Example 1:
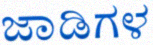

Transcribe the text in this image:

ಜಾಡಿಗಳ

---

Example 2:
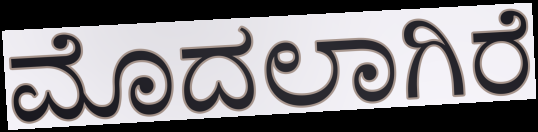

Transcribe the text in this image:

ಮೊದಲಾಗಿರೆ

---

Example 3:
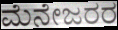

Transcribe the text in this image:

ಮೆನೇಜರರ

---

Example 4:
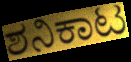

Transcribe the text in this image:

ಶನಿಕಾಟ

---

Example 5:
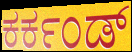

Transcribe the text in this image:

ಕರ್ಕಂಡ್